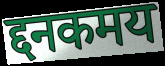
द्दनकमय